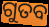
ଗୁତବ